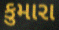
કુમારા